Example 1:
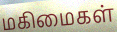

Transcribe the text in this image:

மகிமைகள்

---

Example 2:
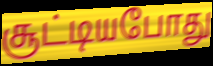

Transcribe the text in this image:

சூட்டியபோது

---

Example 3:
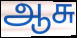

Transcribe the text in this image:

ஆசு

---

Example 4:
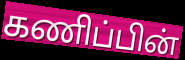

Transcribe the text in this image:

கணிப்பின்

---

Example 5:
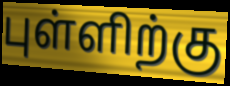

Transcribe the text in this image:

புள்ளிற்கு